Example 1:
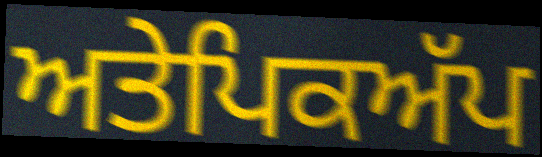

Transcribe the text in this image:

ਅਤੇਪਿਕਅੱਪ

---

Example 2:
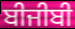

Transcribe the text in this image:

ਬੀਜੀਬੀ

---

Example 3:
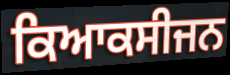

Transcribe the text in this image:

ਕਿਆਕਸੀਜਨ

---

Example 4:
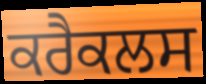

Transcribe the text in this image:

ਕਰੈਕਲਸ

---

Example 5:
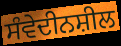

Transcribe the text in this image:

ਸੰਵੇਦੀਨਸ਼ੀਲ